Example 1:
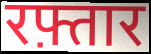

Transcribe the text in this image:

रफ़्तार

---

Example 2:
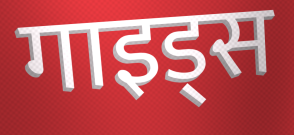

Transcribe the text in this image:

गाइड्स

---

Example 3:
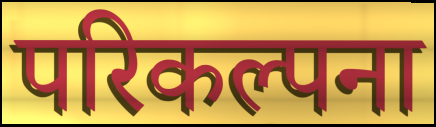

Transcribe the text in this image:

परिकल्पना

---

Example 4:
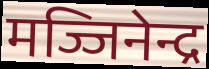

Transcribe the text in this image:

मज्जिनेन्द्र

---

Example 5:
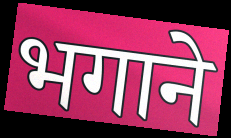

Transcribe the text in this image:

भगाने